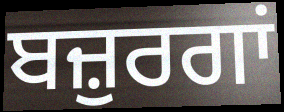
ਬਜ਼ੁਰਗਾਂ